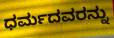
ಧರ್ಮದವರನ್ನು